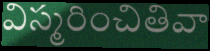
విస్మరించితివా